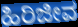
ಹಿರಿಜೀವ